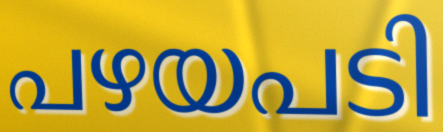
പഴയപടി